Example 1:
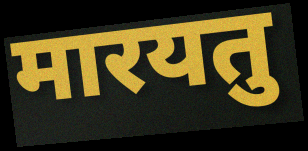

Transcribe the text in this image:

मारयतु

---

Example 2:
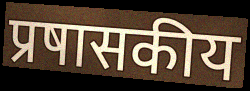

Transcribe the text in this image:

प्रषासकीय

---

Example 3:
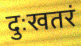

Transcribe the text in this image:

दुःखतरं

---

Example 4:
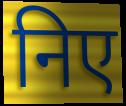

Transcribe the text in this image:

निए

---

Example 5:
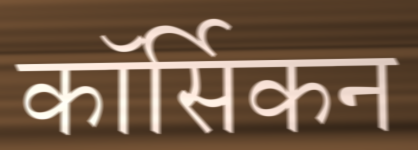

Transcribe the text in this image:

कॉर्सिकन